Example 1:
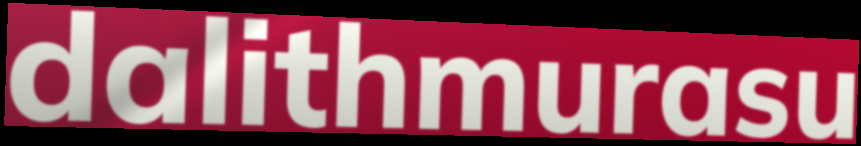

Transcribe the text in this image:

dalithmurasu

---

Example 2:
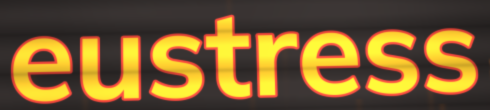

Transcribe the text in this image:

eustress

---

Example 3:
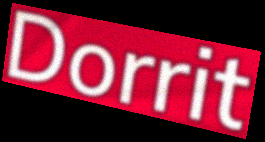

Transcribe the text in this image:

Dorrit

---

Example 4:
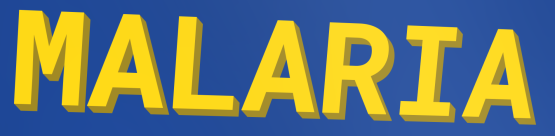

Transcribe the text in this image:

MALARIA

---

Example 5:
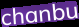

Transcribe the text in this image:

chanbu